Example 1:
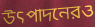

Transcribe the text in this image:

উৎপাদনেরও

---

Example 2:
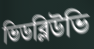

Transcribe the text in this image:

ভিডব্লিউভি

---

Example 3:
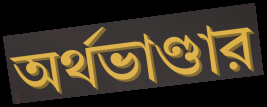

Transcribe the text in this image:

অর্থভাণ্ডার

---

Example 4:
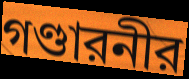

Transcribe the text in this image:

গণ্ডারনীর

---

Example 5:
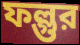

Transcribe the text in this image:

ফল্গুর